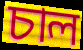
চাল